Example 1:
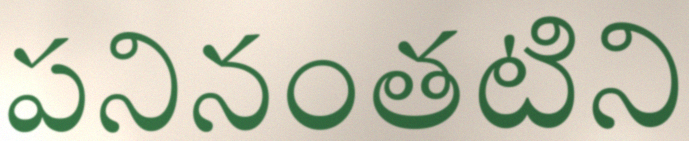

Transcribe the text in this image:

పనినంతటిని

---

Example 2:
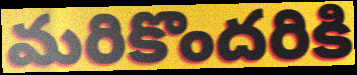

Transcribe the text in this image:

మరికొందరికి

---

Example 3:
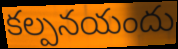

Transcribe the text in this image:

కల్పనయందు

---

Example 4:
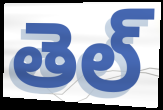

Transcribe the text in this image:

తెల్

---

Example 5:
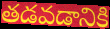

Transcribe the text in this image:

తడవడానికి